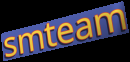
smteam